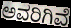
ಅವರಿಗಿವೆ